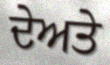
ਦੇਅਤੇ